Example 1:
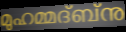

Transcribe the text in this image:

മുഹമ്മദ്ബ്നു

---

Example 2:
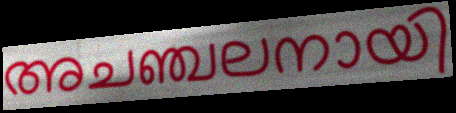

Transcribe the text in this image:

അചഞ്ചലനായി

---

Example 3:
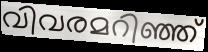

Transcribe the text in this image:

വിവരമറിഞ്ഞ്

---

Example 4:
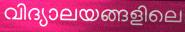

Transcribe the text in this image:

വിദ്യാലയങ്ങളിലെ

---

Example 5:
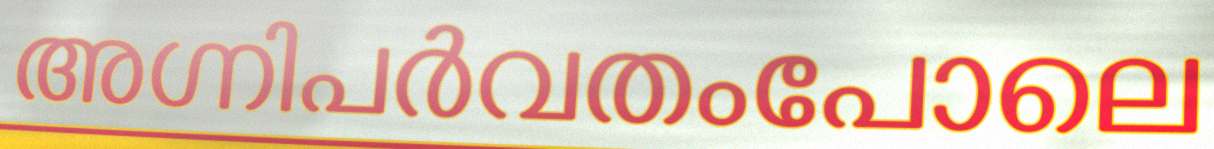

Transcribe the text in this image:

അഗ്നിപർവതംപോലെ